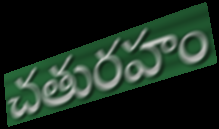
చతురహం